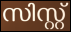
സിസ്റ്റ്